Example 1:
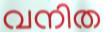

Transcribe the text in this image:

വനിത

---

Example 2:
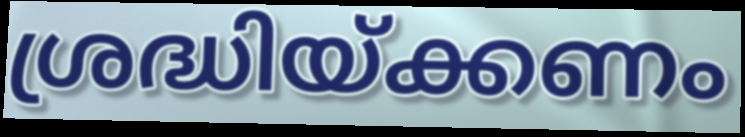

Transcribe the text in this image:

ശ്രദ്ധിയ്ക്കണം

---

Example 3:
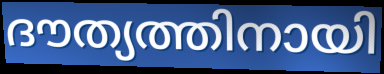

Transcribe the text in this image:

ദൗത്യത്തിനായി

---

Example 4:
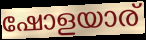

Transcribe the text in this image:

ഷോളയാര്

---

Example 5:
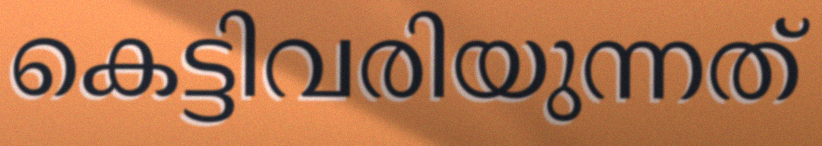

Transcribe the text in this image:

കെട്ടിവരിയുന്നത്